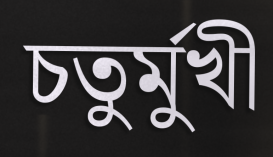
চতুর্মুখী